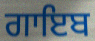
ਗਾਇਬ